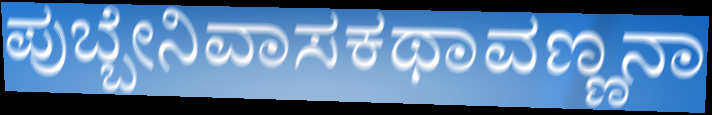
ಪುಬ್ಬೇನಿವಾಸಕಥಾವಣ್ಣನಾ